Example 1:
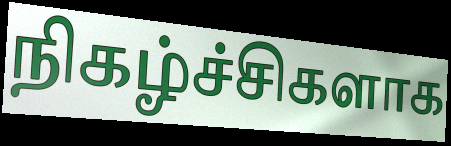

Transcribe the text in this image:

நிகழ்ச்சிகளாக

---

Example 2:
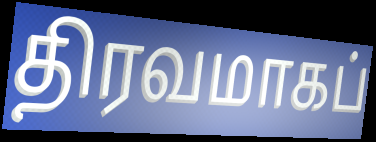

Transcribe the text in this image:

திரவமாகப்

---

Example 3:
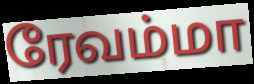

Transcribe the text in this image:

ரேவம்மா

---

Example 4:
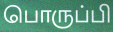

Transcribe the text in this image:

பொருப்பி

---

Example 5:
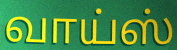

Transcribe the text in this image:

வாய்ஸ்